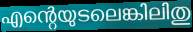
എന്റെയുടലെങ്കിലിതു